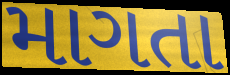
માગતા